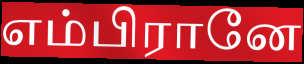
எம்பிரானே